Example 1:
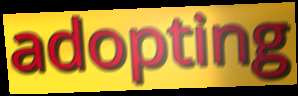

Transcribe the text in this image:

adopting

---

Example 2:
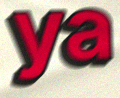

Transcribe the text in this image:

ya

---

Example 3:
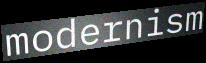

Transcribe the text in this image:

modernism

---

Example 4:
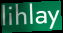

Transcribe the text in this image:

lihlay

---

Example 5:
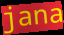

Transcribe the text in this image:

jana